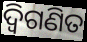
ଦ୍ୱିଗଣିତ